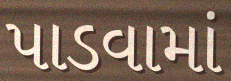
પાડવામાં